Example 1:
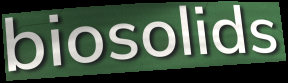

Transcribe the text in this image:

biosolids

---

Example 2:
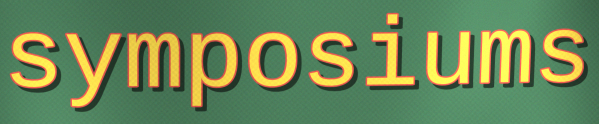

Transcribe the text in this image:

symposiums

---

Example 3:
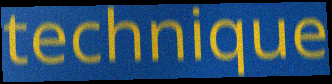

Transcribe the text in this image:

technique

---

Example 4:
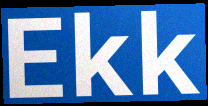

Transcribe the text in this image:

Ekk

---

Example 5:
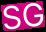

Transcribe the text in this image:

SG